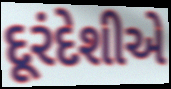
દૂરંદેશીએ